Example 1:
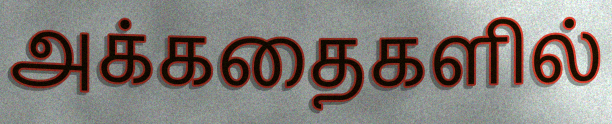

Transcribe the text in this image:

அக்கதைகளில்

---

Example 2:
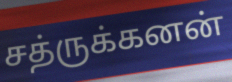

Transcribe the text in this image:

சத்ருக்கனன்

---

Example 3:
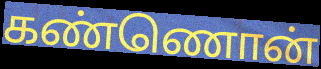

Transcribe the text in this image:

கண்ணொன்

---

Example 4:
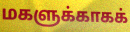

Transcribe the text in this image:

மகளுக்காகக்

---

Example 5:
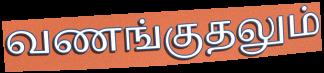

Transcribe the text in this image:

வணங்குதலும்